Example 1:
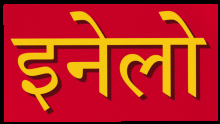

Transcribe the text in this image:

इनेलो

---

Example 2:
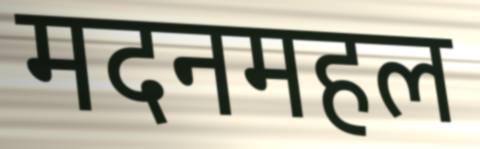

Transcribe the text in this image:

मदनमहल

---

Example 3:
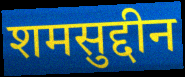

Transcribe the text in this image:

शमसुद्दीन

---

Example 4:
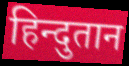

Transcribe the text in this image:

हिन्दुतान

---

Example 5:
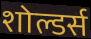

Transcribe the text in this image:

शोल्डर्स